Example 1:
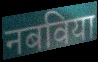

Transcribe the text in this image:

नबविया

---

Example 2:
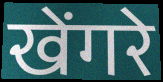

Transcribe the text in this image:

खेंगरे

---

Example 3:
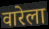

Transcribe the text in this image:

वारेला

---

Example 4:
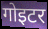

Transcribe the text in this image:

गोइटर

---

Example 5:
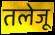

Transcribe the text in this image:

तलेजू